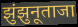
झुंझुनूताजा